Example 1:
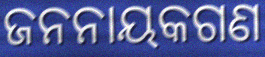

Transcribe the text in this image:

ଜନନାୟକଗଣ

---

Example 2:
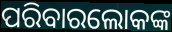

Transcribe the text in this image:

ପରିବାରଲୋକଙ୍କ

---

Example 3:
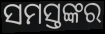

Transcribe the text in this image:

ସମସ୍ତଙ୍କର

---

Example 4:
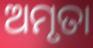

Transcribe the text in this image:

ଅମୃତା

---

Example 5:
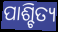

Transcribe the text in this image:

ପାଶ୍ଚିତ୍ୟ